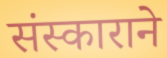
संस्काराने